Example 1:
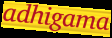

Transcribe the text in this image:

adhigama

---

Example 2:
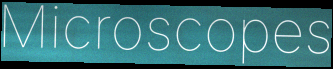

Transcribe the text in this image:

Microscopes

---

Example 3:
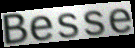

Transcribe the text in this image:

Besse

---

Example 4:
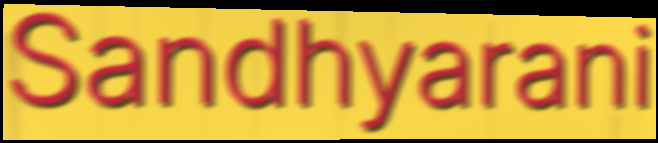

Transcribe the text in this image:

Sandhyarani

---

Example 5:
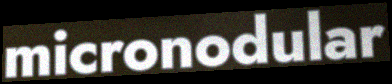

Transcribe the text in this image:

micronodular